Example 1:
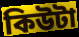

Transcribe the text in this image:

কিউটা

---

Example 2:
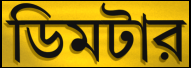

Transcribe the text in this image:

ডিমটার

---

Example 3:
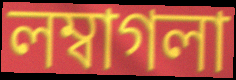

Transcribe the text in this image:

লম্বাগলা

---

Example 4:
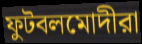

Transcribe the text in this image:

ফুটবলমোদীরা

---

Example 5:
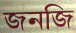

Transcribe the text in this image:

জনজি